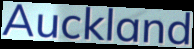
Auckland